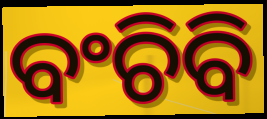
ବଂଚିବି